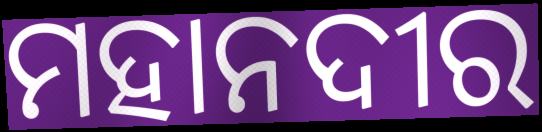
ମହାନଦୀର